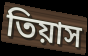
তিয়াস